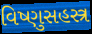
વિષ્ણુસહસ્ત્ર